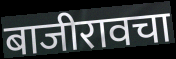
बाजीरावचा